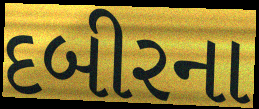
દબીરના